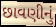
છાવણીનું